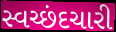
સ્વચ્છંદચારી